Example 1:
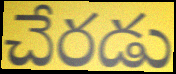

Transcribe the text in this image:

చేరడు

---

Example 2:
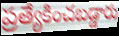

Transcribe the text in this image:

ప్రత్యేకించబడ్డారు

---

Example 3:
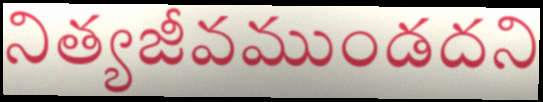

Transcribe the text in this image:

నిత్యజీవముండదని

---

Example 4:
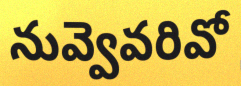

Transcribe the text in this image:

నువ్వెవరివో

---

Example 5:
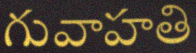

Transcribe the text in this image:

గువాహతి